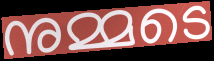
നുമ്മടെ